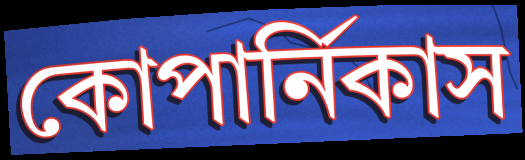
কোপার্নিকাস